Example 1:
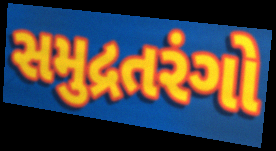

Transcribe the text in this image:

સમુદ્રતરંગો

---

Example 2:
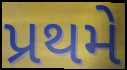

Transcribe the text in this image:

પ્રથમે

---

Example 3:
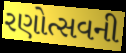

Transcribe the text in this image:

રણોત્સવની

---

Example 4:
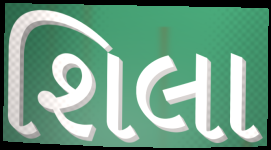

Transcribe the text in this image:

શિલા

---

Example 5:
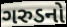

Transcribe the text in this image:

ગરુડનો